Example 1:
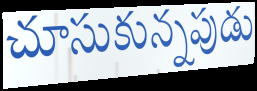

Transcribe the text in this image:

చూసుకున్నపుడు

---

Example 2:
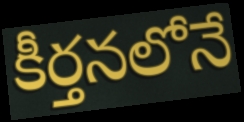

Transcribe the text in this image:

కీర్తనలోనే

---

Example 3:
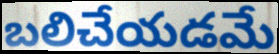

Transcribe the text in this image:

బలిచేయడమే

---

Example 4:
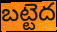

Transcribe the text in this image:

బట్టెద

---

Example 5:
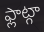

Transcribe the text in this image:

ఫ్లాట్గా